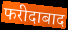
फरीदाबाद